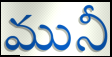
మునీ